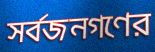
সর্বজনগণের